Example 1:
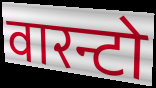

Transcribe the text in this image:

वारन्टो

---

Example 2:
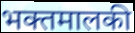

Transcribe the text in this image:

भक्तमालकी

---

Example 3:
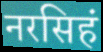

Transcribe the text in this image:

नरसिहं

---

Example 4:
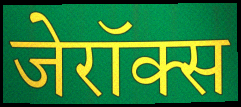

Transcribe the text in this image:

जेरॉक्स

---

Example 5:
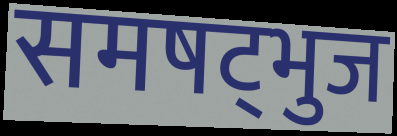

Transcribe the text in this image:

समषट्भुज